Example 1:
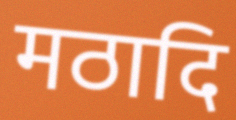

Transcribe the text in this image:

मठादि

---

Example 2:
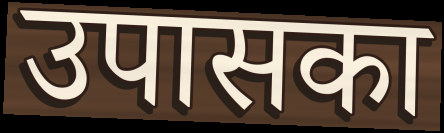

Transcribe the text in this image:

उपासका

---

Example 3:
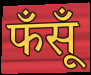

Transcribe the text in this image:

फँसूँ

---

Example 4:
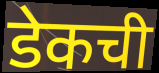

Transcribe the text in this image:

डेकची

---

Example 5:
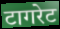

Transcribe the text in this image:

टागरेट